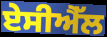
ਏਸੀਐੱਲ